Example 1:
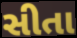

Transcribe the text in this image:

સીતા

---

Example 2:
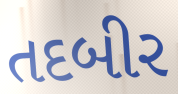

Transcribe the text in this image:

તદબીર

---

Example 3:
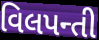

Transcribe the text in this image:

વિલપન્તી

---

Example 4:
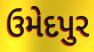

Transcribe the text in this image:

ઉમેદપુર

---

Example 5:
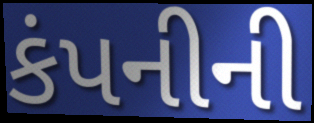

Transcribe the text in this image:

કંપનીની